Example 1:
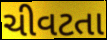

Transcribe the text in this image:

ચીવટતા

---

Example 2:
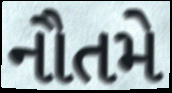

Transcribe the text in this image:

નૌતમે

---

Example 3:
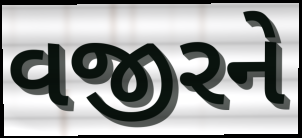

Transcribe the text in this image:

વજીરને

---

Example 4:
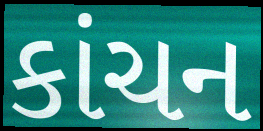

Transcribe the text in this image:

કાંચન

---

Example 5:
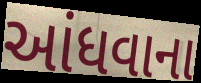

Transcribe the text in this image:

આંધવાના